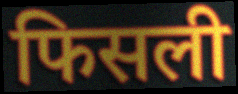
फिसली